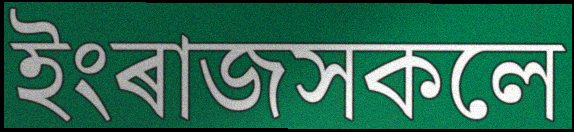
ইংৰাজসকলে